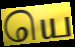
யெ